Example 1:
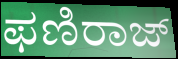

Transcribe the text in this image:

ಫಣಿರಾಜ್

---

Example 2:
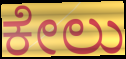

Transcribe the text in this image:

ಕೇಲು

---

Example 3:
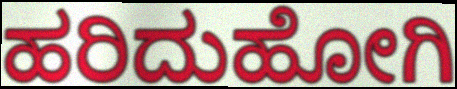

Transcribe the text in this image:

ಹರಿದುಹೋಗಿ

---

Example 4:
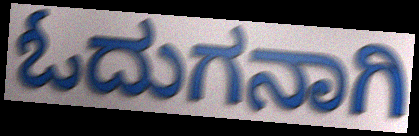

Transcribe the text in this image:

ಓದುಗನಾಗಿ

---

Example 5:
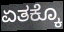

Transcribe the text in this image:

ಏತಕ್ಕೊ